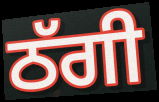
ਠੱਗੀ